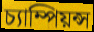
চ্যাম্পিয়ন্স